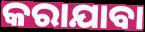
କରାଯାବା